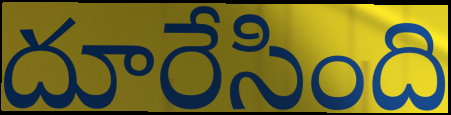
దూరేసింది